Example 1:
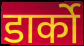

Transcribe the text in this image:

डार्को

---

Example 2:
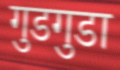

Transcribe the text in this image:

गुडगुडा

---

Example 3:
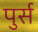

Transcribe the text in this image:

पुर्स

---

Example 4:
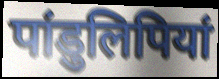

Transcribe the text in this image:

पांडुलिपियां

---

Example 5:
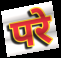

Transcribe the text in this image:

परे